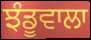
ਝੰਡੂਵਾਲਾ